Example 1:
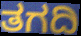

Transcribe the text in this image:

ತಗದಿ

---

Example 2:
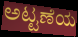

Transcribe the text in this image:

ಅಟ್ಟಣೆಯ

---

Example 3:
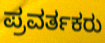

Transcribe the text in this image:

ಪ್ರವರ್ತಕರು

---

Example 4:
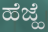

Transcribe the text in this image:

ಹೆಜ್ಹೆ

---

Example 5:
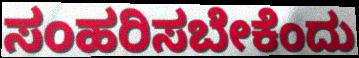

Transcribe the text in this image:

ಸಂಹರಿಸಬೇಕೆಂದು